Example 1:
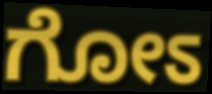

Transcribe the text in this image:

ಗೋಽ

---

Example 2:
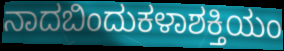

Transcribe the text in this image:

ನಾದಬಿಂದುಕಳಾಶಕ್ತಿಯಂ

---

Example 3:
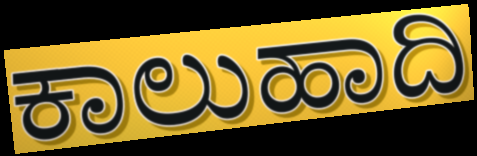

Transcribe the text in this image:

ಕಾಲುಹಾದಿ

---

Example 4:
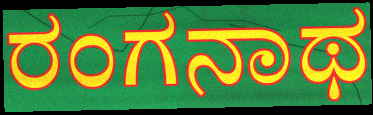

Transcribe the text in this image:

ರಂಗನಾಥ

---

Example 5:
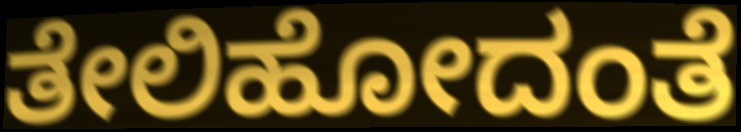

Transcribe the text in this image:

ತೇಲಿಹೋದಂತೆ